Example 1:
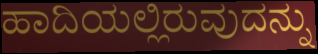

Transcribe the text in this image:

ಹಾದಿಯಲ್ಲಿರುವುದನ್ನು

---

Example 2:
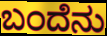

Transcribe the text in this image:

ಬಂದೆನು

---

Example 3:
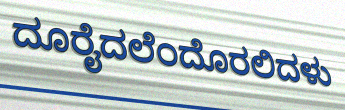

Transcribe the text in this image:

ದೂರೈದಲೆಂದೊರಲಿದಳು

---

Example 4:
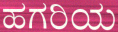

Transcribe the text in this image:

ಹಗರಿಯ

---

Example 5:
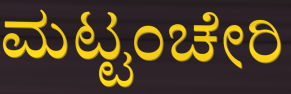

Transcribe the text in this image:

ಮಟ್ಟಂಚೇರಿ